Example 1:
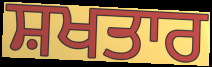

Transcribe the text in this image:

ਸ਼ਖਤਾਰ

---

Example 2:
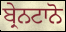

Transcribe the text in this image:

ਬ੍ਰੇਨਟਾਨੋ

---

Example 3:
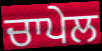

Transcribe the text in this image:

ਚਾਪੇਲ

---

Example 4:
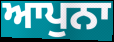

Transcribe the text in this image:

ਆਪੁਨਾ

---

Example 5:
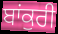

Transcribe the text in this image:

ਬਾਂਕੁਰੀ